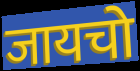
जायचो